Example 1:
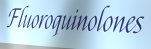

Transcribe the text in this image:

Fluoroquinolones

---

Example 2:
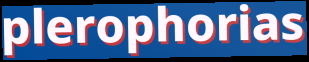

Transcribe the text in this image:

plerophorias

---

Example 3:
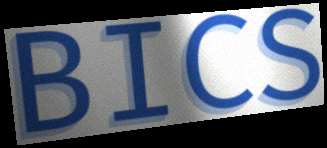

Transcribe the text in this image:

BICS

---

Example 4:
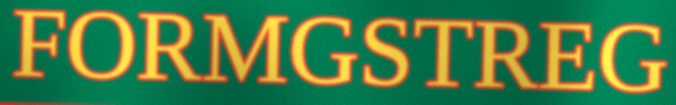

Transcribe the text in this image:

FORMGSTREG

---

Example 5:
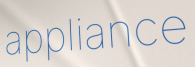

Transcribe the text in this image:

appliance